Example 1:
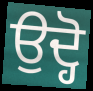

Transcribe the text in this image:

ਉਦ੍ਹੋ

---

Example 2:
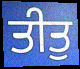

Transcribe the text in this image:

ਤੀਤੁ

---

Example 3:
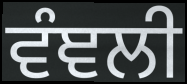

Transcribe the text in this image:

ਵੰਞਲੀ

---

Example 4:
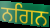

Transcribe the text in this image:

ਨਗਿਨ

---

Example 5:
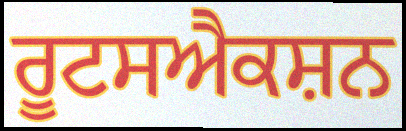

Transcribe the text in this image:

ਰੂਟਸਐਕਸ਼ਨ